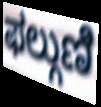
ಫಲ್ಗುಣಿ